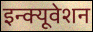
इन्क्यूवेशन